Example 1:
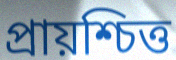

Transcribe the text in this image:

প্ৰায়শ্চিত্ত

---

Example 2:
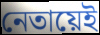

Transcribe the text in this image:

নেতায়েই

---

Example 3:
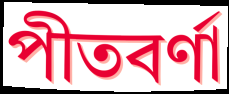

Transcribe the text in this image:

পীতবৰ্ণা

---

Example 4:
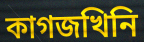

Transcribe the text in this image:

কাগজখিনি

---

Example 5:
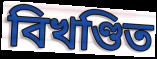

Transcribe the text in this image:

বিখণ্ডিত